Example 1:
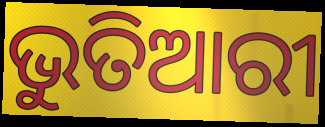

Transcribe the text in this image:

ଭୁତିଆରୀ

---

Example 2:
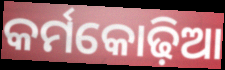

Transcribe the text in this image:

କର୍ମକୋଢ଼ିଆ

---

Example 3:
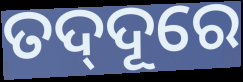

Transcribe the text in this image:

ତଦ୍‍ଦୂରେ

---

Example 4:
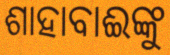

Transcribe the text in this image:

ଶାହାବାଈଙ୍କୁ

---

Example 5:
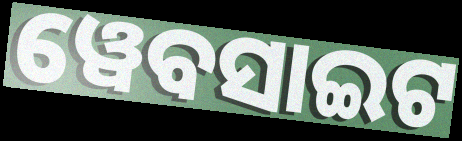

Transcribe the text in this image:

ୱେବସାଇଟ